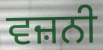
ਵਜ਼ਨੀ